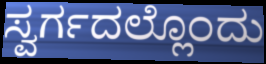
ಸ್ವರ್ಗದಲ್ಲೊಂದು